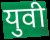
युवी